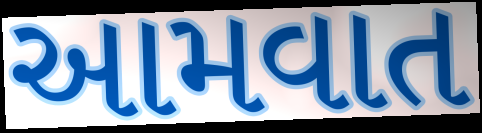
આમવાત